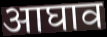
आघाव